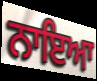
ਨਾਇਆ